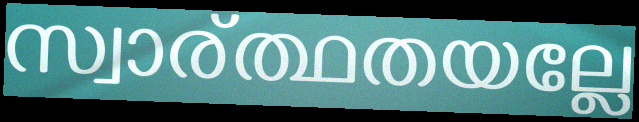
സ്വാര്ത്ഥതയല്ലേ